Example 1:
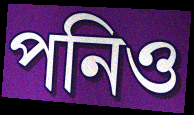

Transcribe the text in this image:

পনিও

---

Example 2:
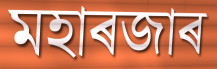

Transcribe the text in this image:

মহাৰজাৰ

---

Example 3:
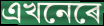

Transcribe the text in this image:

এখনেৰে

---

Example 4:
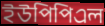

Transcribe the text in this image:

ইউপিপিএল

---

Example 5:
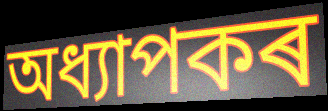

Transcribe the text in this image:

অধ্যাপকৰ